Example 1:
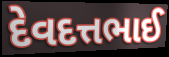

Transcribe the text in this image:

દેવદત્તભાઈ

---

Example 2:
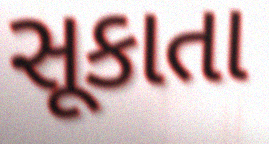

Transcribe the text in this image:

સૂકાતા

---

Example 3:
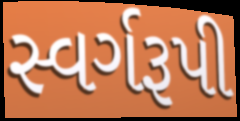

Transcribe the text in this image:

સ્વર્ગરૂપી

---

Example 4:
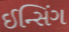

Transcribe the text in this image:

ઈન્સિંગ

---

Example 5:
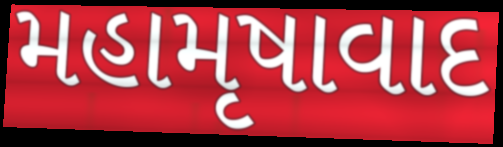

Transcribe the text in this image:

મહામૃષાવાદ